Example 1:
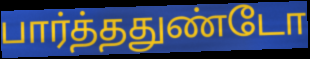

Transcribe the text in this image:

பார்த்ததுண்டோ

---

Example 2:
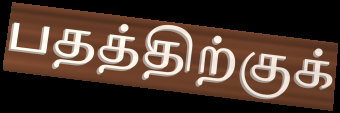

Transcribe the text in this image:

பதத்திற்குக்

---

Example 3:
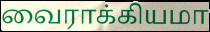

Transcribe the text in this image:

வைராக்கியமா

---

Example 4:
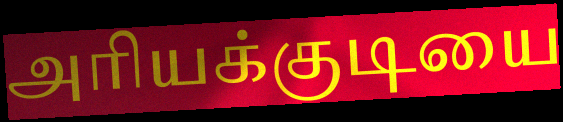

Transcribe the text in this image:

அரியக்குடியை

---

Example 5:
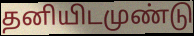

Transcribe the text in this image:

தனியிடமுண்டு